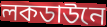
লকডাউনে